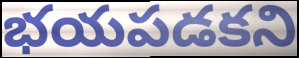
భయపడకని